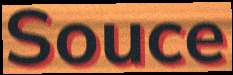
Souce